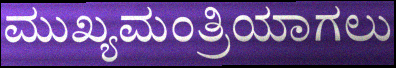
ಮುಖ್ಯಮಂತ್ರಿಯಾಗಲು